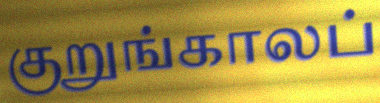
குறுங்காலப்